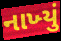
નાખ્‍યું